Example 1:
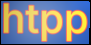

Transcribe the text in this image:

htpp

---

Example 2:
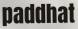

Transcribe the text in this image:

paddhat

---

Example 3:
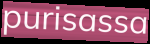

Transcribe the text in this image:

purisassa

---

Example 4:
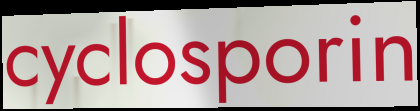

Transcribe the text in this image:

cyclosporin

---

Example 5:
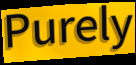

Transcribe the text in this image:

Purely